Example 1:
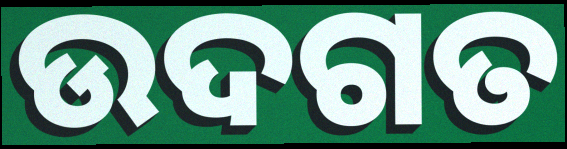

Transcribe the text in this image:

ଉଦଗତ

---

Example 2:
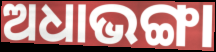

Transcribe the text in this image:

ଅଧାଭଙ୍ଗା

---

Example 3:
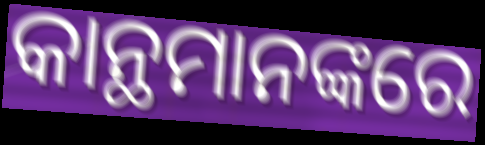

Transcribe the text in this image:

କାନ୍ଥମାନଙ୍କରେ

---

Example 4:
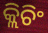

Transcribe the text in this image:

କ୍ଲିଚିଂ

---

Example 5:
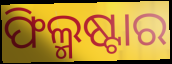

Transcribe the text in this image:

ଫିଲ୍ମଷ୍ଟାର